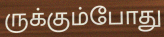
ருக்கும்போது